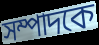
সম্পাদকে